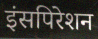
इंसपिरेशन